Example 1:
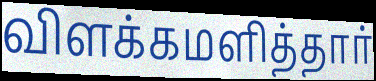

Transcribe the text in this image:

விளக்கமளித்தார்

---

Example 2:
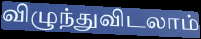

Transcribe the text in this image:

விழுந்துவிடலாம்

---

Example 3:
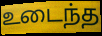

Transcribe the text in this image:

உடைந்த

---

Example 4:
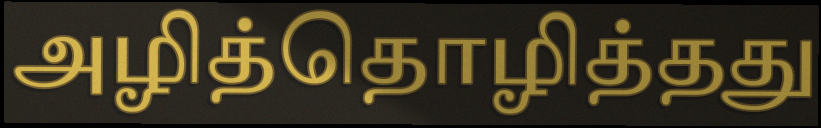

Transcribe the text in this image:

அழித்தொழித்தது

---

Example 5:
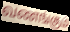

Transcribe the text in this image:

வணங்கும்